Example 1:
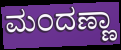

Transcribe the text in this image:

ಮಂದಣ್ಣಾ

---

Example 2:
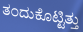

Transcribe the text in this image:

ತಂದುಕೊಟ್ಟಿತ್ತು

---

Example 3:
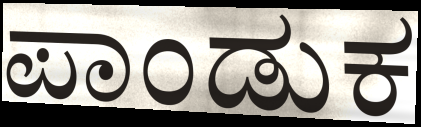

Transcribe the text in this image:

ಪಾಂಡುಕ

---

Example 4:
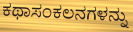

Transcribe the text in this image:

ಕಥಾಸಂಕಲನಗಳನ್ನು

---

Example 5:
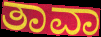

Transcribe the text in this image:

ತಾವಾ